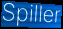
Spiller